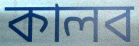
কালব